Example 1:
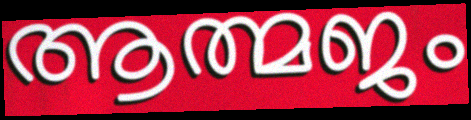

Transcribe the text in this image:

ആത്മജം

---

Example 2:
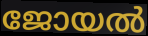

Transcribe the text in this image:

ജോയൽ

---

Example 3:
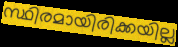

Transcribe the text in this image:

സ്ഥിരമായിരിക്കയില്ല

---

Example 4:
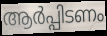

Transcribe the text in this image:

ആർപ്പിടണം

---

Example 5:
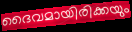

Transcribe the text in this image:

ദൈവമായിരിക്കയും